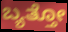
ಬ್ಯತ್ತೋ